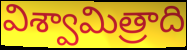
విశ్వామిత్రాది